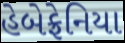
હેબેફ્રેનિયા